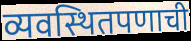
व्यवस्थितपणाची